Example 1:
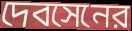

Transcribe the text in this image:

দেবসেনের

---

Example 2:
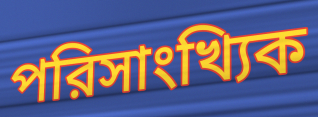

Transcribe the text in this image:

পরিসাংখ্যিক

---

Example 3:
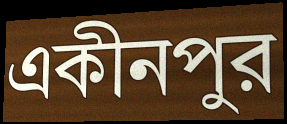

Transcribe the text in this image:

একীনপুর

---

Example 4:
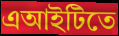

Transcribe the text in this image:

এআইটিতে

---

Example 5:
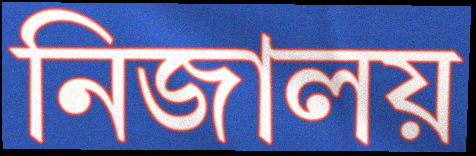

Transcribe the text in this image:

নিজালয়